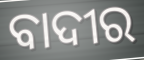
ବାଦୀର